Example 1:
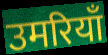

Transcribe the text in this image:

उमरियाँ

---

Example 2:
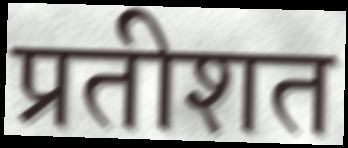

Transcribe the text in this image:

प्रतीशत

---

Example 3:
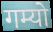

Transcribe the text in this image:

गम्यो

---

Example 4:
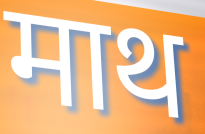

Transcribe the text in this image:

माथ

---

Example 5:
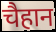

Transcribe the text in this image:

चैहान